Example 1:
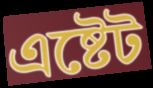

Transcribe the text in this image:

এষ্টেট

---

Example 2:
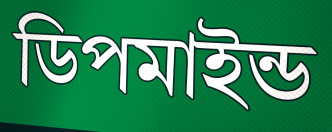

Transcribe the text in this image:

ডিপমাইন্ড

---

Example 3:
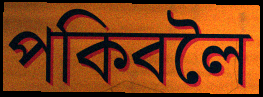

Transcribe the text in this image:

পকিবলৈ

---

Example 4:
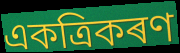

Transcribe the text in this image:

একত্ৰিকৰণ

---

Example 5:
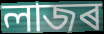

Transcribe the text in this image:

লাজৰ